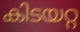
കിടയറ്റ